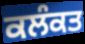
ਕਲੰਕਤ